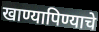
खाण्यापिण्याचे